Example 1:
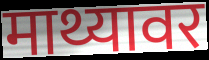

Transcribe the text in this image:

माथ्यावर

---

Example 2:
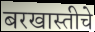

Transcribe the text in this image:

बरखास्तीचे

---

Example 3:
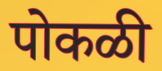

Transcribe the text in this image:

पोकळी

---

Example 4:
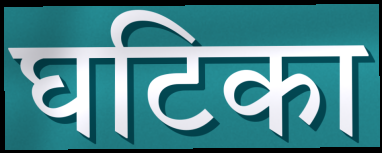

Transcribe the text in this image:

घटिका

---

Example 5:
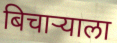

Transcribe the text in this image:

बिचार्‍याला